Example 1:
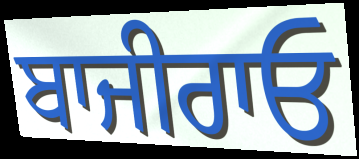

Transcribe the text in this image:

ਬਾਜੀਰਾਓ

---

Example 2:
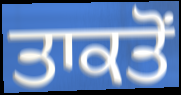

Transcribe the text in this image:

ਤਾਕਤੋਂ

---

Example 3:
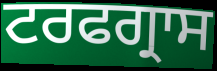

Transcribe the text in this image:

ਟਰਫਗ੍ਰਾਸ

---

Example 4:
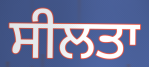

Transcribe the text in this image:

ਸੀਲਤਾ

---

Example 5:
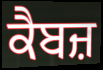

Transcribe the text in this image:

ਕੈਬਜ਼